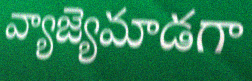
వ్యాజ్యెమాడగా